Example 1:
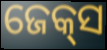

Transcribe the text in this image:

ଜେକ୍‍ସ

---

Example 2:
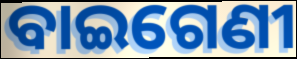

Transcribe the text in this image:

ବାଇଗେଣୀ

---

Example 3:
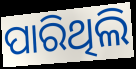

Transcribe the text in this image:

ପାରିଥିଲି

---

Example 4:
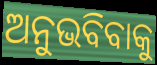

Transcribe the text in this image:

ଅନୁଭବିବାକୁ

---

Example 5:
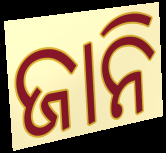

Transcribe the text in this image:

ଜାନି